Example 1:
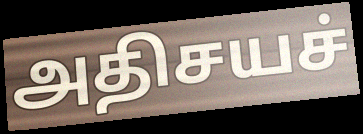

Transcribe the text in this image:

அதிசயச்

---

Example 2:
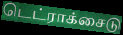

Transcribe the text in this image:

டெட்ராக்சைடு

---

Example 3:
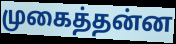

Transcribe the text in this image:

முகைத்தன்ன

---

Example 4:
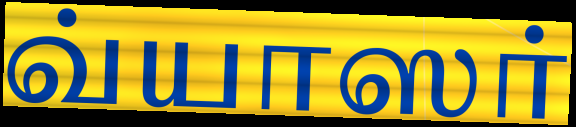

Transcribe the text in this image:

வ்யாஸர்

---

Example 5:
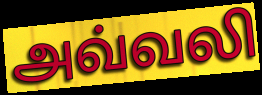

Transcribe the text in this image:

அவ்வலி